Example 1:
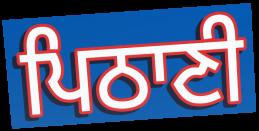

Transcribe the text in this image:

ਪਿਠਾਣੀ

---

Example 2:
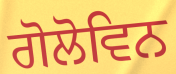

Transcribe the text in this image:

ਗੋਲੋਵਿਨ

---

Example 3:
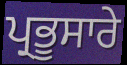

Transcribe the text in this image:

ਪ੍ਰਭੂਸਾਰੇ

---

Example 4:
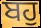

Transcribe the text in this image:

ਬਹੁ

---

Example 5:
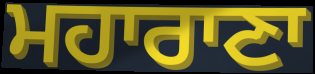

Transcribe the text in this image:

ਮਹਾਰਾਣਾ